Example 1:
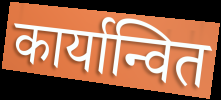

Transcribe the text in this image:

कार्यान्वित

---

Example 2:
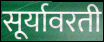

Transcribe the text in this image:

सूर्यावरती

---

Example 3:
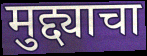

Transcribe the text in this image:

मुद्द्याचा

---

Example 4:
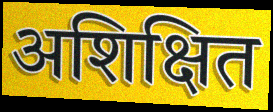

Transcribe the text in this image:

अशिक्षित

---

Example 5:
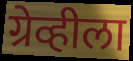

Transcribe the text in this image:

ग्रेव्हीला